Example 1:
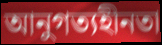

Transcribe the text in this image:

আনুগত্যহীনতা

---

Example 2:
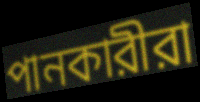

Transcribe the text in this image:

পানকারীরা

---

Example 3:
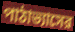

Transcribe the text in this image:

পাঠাভ্যাসের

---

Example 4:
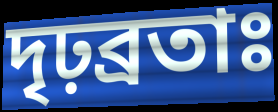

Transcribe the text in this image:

দৃঢ়ব্রতাঃ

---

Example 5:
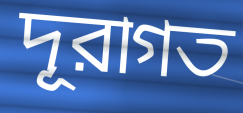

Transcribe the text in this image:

দূরাগত